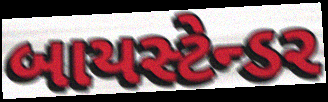
બાયસ્ટેન્ડર